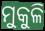
ମୁକୁଳି